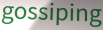
gossiping